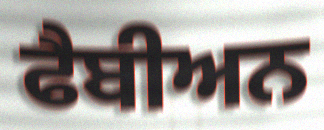
ਫੈਬੀਅਨ